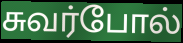
சுவர்போல்